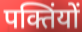
पक्तिंयों